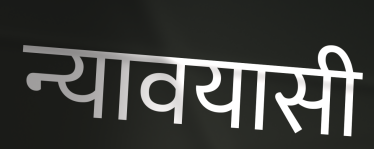
न्यावयासी